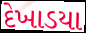
દેખાડયા